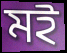
মই